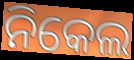
ନିକେଲ